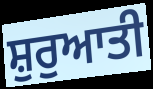
ਸ਼ੁਰੁਆਤੀ